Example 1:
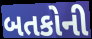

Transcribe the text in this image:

બતકોની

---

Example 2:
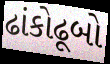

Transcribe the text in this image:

ઢાંકોઢૂબો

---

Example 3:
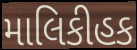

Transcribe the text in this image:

માલિકીહક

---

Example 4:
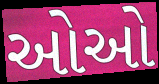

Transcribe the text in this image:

ઓઓ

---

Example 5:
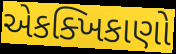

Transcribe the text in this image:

એકક્ખિકાણો